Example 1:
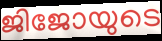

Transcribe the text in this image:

ജിജോയുടെ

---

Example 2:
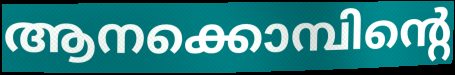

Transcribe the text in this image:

ആനക്കൊമ്പിന്റെ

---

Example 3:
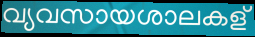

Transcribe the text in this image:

വ്യവസായശാലകള്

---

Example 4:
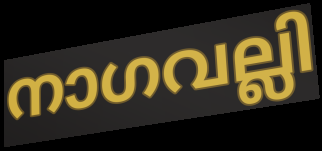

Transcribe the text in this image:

നാഗവല്ലി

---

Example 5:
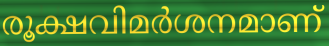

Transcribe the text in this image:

രൂക്ഷവിമർശനമാണ്